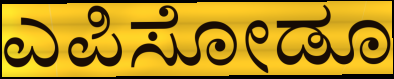
ಎಪಿಸೋಡೂ